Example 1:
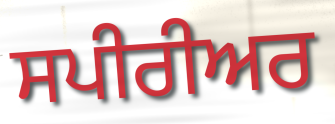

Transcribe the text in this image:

ਸਪੀਰੀਅਰ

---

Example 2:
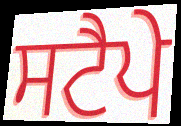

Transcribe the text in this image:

ਸਟੈਪੇ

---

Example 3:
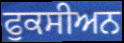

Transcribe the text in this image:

ਫੁਕਸੀਅਨ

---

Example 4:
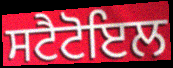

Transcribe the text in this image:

ਸਟੈਟੋਇਲ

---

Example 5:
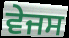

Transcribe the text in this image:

ਵੇਜਸ